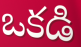
ఒకడి